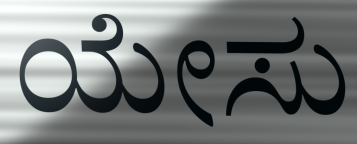
ಯೇಸು